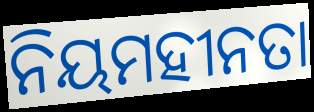
ନିୟମହୀନତା